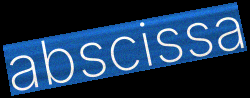
abscissa